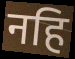
नहि